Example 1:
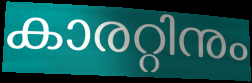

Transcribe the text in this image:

കാരറ്റിനും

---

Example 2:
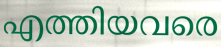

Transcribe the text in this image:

എത്തിയവരെ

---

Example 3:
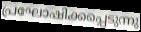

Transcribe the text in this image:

പ്രഘോഷിക്കപ്പെടുന്നു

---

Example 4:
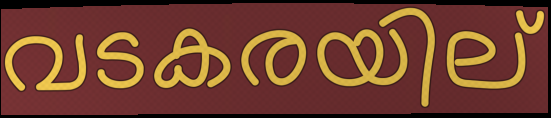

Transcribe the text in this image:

വടകരയില്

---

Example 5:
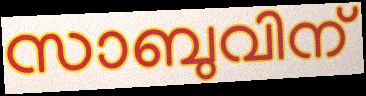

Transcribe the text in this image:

സാബുവിന്